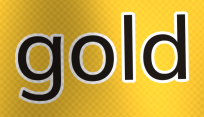
gold